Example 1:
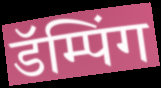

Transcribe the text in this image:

डॅम्पिंग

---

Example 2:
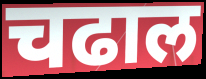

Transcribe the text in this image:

चढाल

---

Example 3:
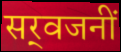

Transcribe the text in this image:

सर्वजनीं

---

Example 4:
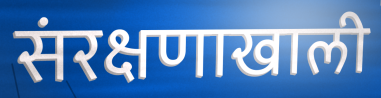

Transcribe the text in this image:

संरक्षणाखाली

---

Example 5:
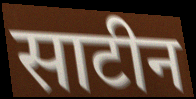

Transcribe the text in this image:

साटीन